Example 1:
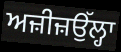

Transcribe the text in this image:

ਅਜ਼ੀਜ਼ਉੱਲ੍ਹਾ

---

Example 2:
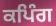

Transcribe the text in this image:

ਕਪਿੰਗ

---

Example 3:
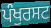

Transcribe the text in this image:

ਪੰਖੁਰਸਟ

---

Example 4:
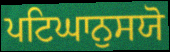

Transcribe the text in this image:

ਪਟਿਘਾਨੁਸਯੋ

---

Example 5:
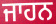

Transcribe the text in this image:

ਜਾਹਨ